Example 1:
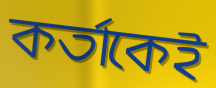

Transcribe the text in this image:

কর্তাকেই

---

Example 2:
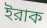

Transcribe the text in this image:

ইরাক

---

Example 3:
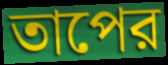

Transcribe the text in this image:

তাপের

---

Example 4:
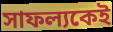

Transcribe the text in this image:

সাফল্যকেই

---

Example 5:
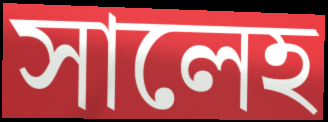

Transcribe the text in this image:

সালেহ